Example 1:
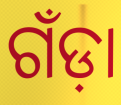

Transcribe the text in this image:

ଗଁଡ଼ା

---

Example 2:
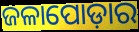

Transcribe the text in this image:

ଜଳାପୋଡ଼ାର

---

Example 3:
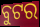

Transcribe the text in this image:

ବୁଟର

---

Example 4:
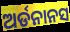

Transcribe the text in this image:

ଅର୍ଡନାନସ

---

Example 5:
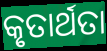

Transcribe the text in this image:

କୃତାର୍ଥତା